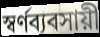
স্বর্ণব্যবসায়ী